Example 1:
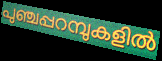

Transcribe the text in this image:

പുഞ്ചപ്പറമ്പുകളിൽ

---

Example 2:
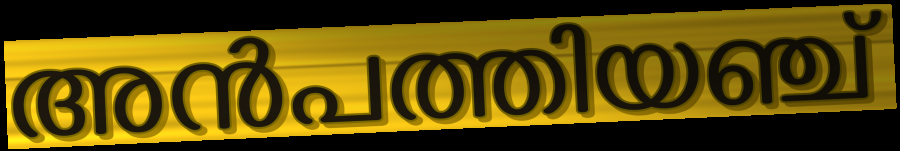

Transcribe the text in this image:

അൻപത്തിയഞ്ച്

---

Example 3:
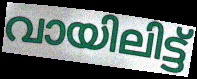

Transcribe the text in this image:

വായിലിട്ട്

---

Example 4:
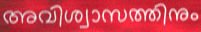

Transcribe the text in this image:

അവിശ്വാസത്തിനും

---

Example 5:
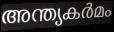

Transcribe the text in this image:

അന്ത്യകർമം